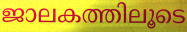
ജാലകത്തിലൂടെ